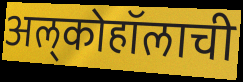
अल्कोहॉलाची